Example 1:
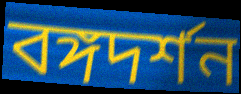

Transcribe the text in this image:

বঙ্গদর্শন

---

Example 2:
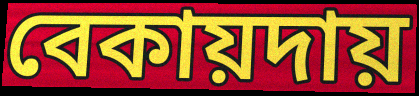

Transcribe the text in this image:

বেকায়দায়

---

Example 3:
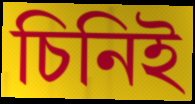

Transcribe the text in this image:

চিনিই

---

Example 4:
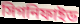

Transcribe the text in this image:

সিগনিফাইড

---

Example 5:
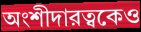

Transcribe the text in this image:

অংশীদারত্বকেও